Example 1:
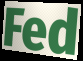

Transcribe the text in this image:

Fed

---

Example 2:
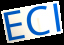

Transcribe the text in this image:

ECI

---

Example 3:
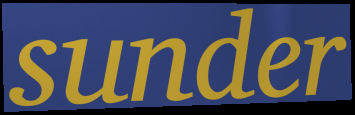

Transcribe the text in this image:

sunder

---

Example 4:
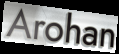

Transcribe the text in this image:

Arohan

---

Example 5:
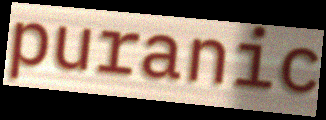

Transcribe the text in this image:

puranic